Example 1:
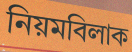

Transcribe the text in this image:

নিয়মবিলাক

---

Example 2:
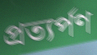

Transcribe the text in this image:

প্ৰত্যৰ্পণ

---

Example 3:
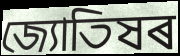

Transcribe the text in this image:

জ্যোতিষৰ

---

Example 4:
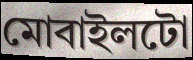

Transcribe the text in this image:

মোবাইলটো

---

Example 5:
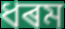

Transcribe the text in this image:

ধৰম